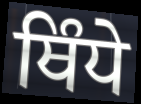
ਥਿੰਧੇ